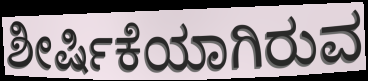
ಶೀರ್ಷಿಕೆಯಾಗಿರುವ